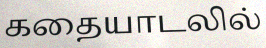
கதையாடலில்